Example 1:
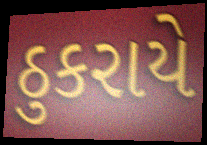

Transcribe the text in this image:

ઠુકરાયે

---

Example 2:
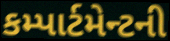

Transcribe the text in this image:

કમ્પાર્ટમેન્ટની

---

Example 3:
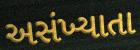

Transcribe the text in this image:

અસંખ્યાતા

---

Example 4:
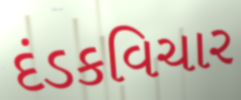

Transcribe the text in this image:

દંડકવિચાર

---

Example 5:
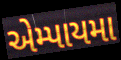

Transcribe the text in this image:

એમ્પાયમા